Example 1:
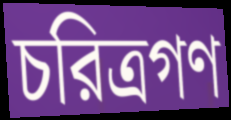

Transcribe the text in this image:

চরিত্রগণ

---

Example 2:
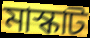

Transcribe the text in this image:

মাস্কাট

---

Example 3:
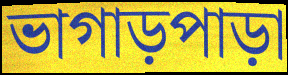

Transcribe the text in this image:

ভাগাড়পাড়া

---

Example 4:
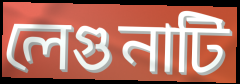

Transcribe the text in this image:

লেগুনাটি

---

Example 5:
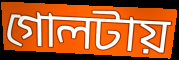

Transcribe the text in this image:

গোলটায়